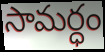
సామర్ధం